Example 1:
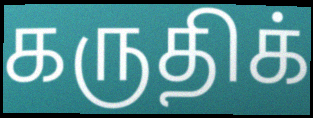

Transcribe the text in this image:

கருதிக்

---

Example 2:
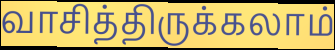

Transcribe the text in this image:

வாசித்திருக்கலாம்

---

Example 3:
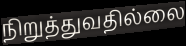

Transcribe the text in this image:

நிறுத்துவதில்லை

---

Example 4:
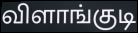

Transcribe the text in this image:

விளாங்குடி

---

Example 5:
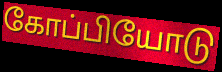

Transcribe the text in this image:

கோப்பியோடு